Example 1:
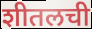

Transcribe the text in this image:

शीतलची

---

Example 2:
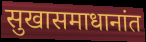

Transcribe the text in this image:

सुखासमाधानांत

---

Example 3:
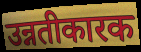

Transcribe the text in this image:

उन्नतीकारक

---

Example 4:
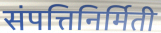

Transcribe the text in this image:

संपत्तिनिर्मिती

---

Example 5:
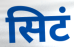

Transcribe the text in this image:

सिटं